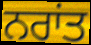
ਨਰਾਂਤ